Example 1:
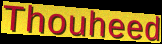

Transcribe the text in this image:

Thouheed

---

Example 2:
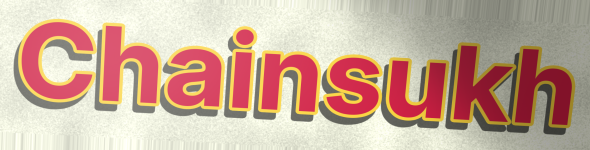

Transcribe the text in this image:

Chainsukh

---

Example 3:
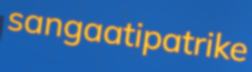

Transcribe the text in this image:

sangaatipatrike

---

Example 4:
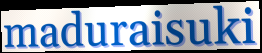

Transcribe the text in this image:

maduraisuki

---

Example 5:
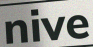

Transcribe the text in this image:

nive